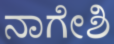
ನಾಗೇಶಿ